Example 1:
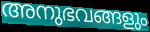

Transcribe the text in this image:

അനുഭവങ്ങളും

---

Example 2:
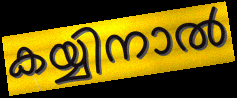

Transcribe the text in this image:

കയ്യിനാൽ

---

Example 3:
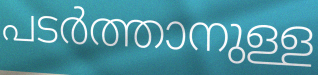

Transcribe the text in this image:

പടർത്താനുള്ള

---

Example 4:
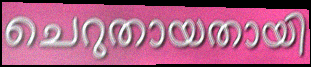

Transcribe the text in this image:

ചെറുതായതായി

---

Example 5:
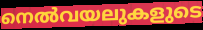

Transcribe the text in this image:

നെൽവയലുകളുടെ